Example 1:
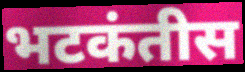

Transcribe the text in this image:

भटकंतीस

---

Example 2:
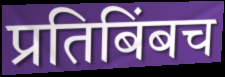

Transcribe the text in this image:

प्रतिबिंबच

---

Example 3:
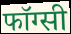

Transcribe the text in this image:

फॉग्सी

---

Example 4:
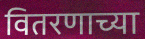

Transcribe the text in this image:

वितरणाच्या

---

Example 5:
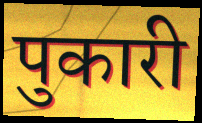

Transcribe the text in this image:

पुकारी